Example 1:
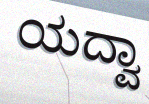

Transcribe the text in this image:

ಯದ್ವಾ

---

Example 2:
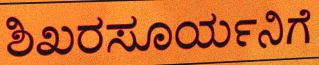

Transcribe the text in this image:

ಶಿಖರಸೂರ್ಯನಿಗೆ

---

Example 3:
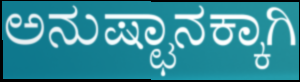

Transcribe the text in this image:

ಅನುಷ್ಟಾನಕ್ಕಾಗಿ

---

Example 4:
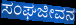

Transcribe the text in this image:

ಸಂಘಜೀವನ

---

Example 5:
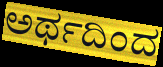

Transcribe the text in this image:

ಅರ್ಥದಿಂದ